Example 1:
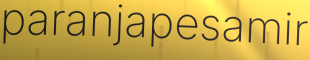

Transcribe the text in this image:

paranjapesamir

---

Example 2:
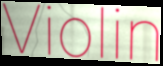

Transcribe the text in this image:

Violin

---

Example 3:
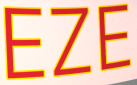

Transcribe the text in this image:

EZE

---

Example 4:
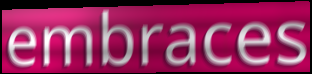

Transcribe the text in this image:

embraces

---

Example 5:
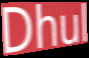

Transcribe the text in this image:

Dhul